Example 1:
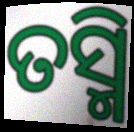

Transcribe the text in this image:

ତସ୍ମି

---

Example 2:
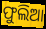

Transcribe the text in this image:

ଫୁଲିଆ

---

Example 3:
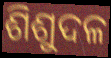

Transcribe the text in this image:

ଶିଶୁଦଳ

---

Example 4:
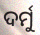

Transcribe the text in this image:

ଦର୍ମୁ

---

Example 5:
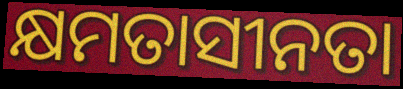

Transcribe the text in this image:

କ୍ଷମତାସୀନତା